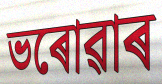
ভৰোৱাৰ